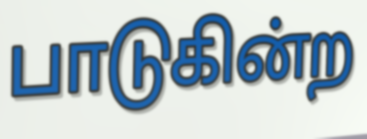
பாடுகின்ற